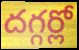
దగ్గర్లో